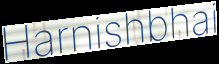
Harnishbhai